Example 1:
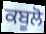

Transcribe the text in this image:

ਕਬੂਲੋ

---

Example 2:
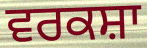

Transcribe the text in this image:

ਵਰਕਸ਼ਾ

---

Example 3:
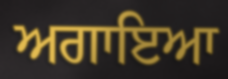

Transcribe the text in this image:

ਅਗਾਇਆ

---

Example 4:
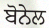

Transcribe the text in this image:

ਬੋਨੇਲ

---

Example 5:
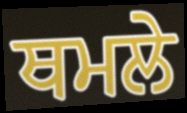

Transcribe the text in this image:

ਥਮਲੇ